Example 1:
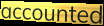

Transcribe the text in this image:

accounted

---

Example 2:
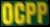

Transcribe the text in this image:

OCPP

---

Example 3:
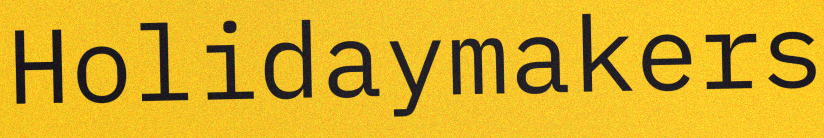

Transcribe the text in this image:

Holidaymakers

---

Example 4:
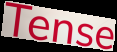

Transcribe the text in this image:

Tense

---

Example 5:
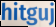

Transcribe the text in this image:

hitguj